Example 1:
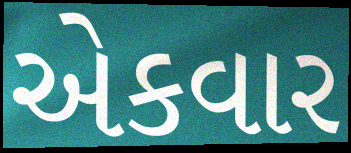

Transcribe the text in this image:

એકવાર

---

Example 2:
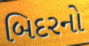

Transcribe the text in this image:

બિદરનો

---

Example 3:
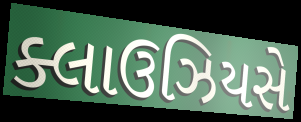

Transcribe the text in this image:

ક્લાઉઝિયસે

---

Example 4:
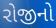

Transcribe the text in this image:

રોજીનો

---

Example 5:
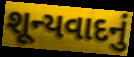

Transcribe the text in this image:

શૂન્યવાદનું